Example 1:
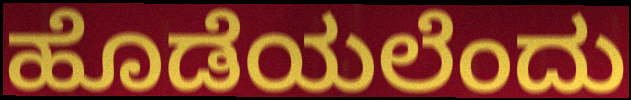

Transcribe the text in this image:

ಹೊಡೆಯಲೆಂದು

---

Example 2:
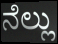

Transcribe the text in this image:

ನೆಲ್ಲು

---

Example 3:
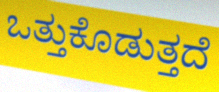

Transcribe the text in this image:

ಒತ್ತುಕೊಡುತ್ತದೆ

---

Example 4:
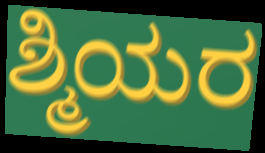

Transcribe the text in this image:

ಶ್ಮಿಯರ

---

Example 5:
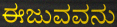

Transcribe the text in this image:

ಈಜುವವನು